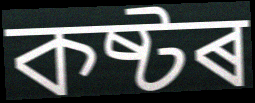
কষ্টৰ